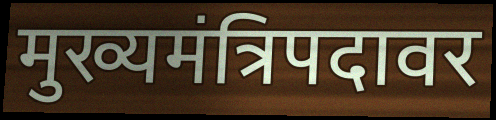
मुख्यमंत्रिपदावर